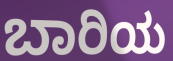
ಬಾರಿಯ